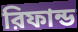
রিফান্ড